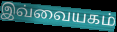
இவ்வையகம்